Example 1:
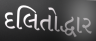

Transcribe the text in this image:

દલિતોદ્ધાર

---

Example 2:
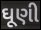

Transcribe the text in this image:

ઘૂણી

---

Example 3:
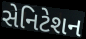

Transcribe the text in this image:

સેનિટેશન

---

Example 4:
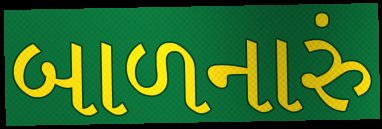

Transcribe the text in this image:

બાળનારું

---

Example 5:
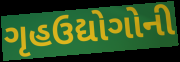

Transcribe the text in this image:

ગૃહઉદ્યોગોની